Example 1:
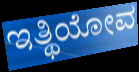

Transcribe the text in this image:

ಇತ್ಥಿಯೋವ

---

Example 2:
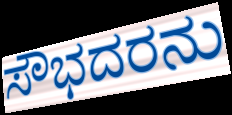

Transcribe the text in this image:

ಸೌಭದರನು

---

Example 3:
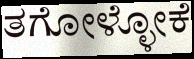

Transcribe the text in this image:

ತಗೋಳ್ಳೋಕೆ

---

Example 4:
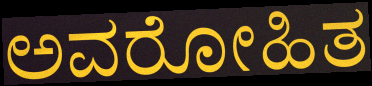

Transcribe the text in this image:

ಅವರೋಹಿತ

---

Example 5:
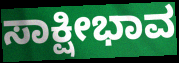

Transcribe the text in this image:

ಸಾಕ್ಷೀಭಾವ